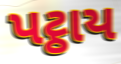
પટ્ઠાય